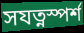
সযত্নস্পর্শ